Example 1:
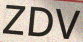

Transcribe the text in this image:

ZDV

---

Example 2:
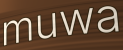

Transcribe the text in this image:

muwa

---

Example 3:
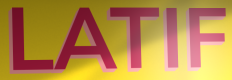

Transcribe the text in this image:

LATIF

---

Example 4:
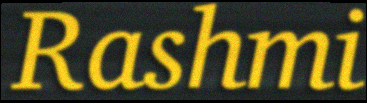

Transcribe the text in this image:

Rashmi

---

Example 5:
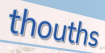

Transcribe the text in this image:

thouths